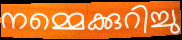
നമ്മെക്കുറിച്ചു